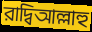
রাদ্বিআল্লাহু